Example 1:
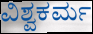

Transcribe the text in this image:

ವಿಶ್ವಕರ್ಮ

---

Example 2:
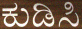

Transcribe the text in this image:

ಕುಡಿಸಿ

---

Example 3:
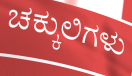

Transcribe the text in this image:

ಚಕ್ಕುಲಿಗಳು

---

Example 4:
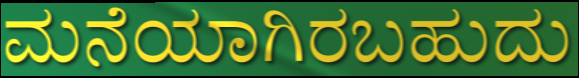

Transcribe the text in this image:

ಮನೆಯಾಗಿರಬಹುದು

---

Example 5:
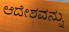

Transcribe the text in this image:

ಆದೇಶವನ್ನು